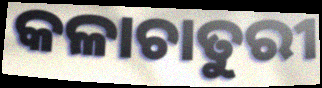
କଳାଚାତୁରୀ